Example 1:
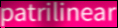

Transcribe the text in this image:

patrilinear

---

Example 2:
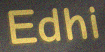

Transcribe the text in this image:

Edhi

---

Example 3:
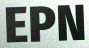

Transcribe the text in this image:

EPN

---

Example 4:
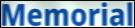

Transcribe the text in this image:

Memorial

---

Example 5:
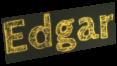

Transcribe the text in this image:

Edgar